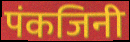
पंकजिनी